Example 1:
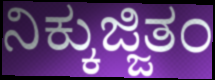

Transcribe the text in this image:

ನಿಕ್ಕುಜ್ಜಿತಂ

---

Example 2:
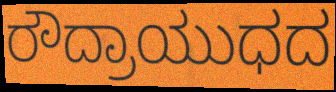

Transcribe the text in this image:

ರೌದ್ರಾಯುಧದ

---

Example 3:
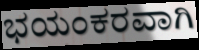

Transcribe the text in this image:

ಭಯಂಕರವಾಗಿ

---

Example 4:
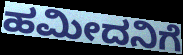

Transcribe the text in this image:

ಹಮೀದನಿಗೆ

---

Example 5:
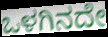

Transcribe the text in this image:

ಒಳಗಿನದೇ